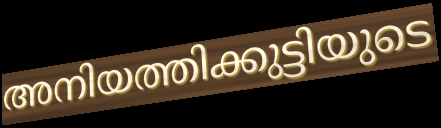
അനിയത്തിക്കുട്ടിയുടെ